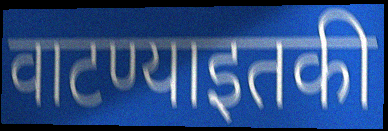
वाटण्याइतकी